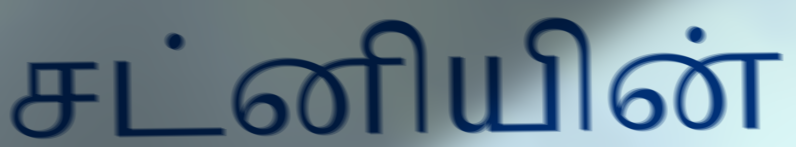
சட்னியின்